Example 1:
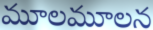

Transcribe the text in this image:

మూలమూలన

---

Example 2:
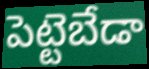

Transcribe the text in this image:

పెట్టెబేడా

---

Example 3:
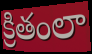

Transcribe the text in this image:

క్రితంలా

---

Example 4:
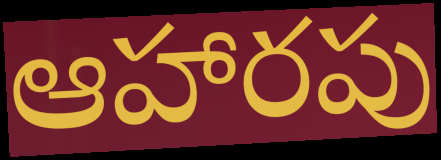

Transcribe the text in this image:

ఆహారపు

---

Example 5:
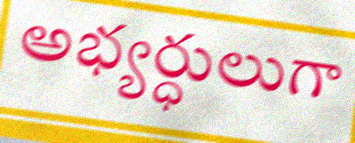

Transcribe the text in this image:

అభ్యర్ధులుగా